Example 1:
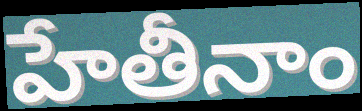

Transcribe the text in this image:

హేతీనాం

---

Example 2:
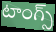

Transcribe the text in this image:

టాంగ్స్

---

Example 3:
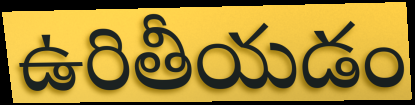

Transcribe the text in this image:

ఉరితీయడం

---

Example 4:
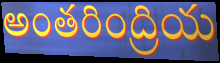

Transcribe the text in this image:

అంతరింద్రియ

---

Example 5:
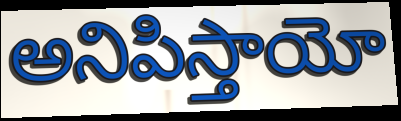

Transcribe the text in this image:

అనిపిస్తాయో